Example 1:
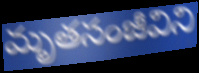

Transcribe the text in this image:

మృతసంజీవిని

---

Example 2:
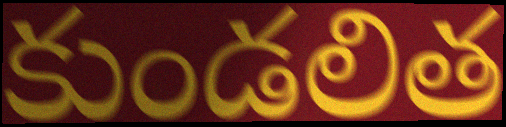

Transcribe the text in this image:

కుండలిత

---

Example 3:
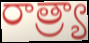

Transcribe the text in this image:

రాత్ర్యా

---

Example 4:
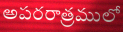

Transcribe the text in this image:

అపరరాత్రములో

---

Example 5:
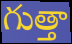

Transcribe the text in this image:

గుత్తా